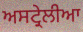
ਅਸਟ੍ਰੇਲੀਆ